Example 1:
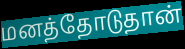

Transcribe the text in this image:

மனத்தோடுதான்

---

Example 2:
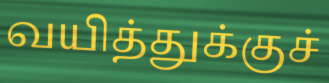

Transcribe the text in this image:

வயித்துக்குச்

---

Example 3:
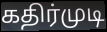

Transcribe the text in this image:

கதிர்முடி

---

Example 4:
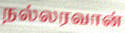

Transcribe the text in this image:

நல்லரவான்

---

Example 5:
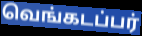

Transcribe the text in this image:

வெங்கடப்பர்